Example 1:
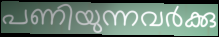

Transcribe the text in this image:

പണിയുന്നവർക്കു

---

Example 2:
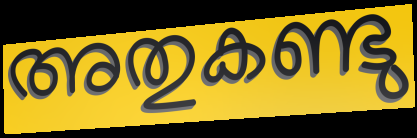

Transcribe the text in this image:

അതുകണ്ടു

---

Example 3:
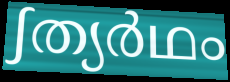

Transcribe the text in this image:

ഽത്യർഥം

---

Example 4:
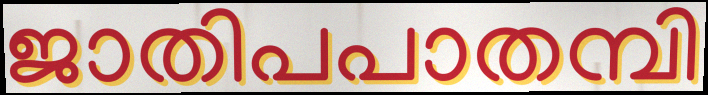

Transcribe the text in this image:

ജാതിപപാതമ്പി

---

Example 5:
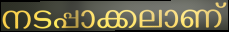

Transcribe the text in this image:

നടപ്പാക്കലാണ്